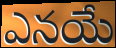
ఎనయే